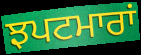
ਝਪਟਮਾਰਾਂ